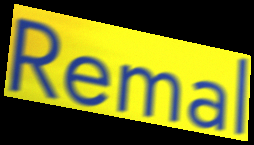
Remal